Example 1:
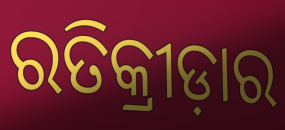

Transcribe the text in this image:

ରତିକ୍ରୀଡ଼ାର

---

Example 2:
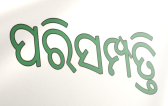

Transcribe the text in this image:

ପରିସମ୍ପତ୍ତି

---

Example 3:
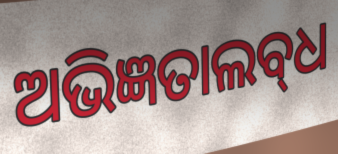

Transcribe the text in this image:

ଅଭିଜ୍ଞତାଲବ୍‌ଧ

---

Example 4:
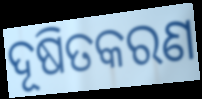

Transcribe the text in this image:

ଦୂଷିତକରଣ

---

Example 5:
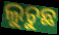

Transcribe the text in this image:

ଲୁଚୁଛ